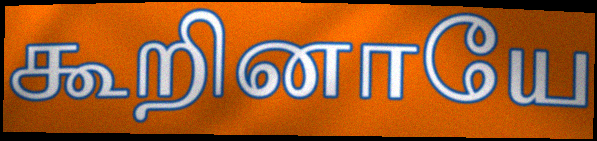
கூறினாயே